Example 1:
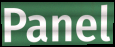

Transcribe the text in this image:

Panel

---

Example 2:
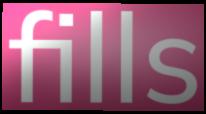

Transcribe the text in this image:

fills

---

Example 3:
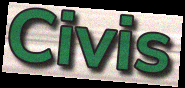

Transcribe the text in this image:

Civis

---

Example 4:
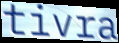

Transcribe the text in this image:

tivra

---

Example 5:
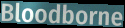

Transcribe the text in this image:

Bloodborne